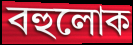
বহুলোক